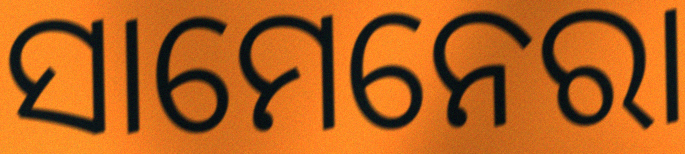
ସାମେନେରା